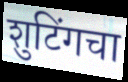
शुटिंगचा